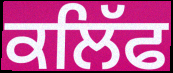
ਕਲਿੱਫ